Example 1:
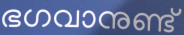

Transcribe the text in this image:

ഭഗവാനുണ്ട്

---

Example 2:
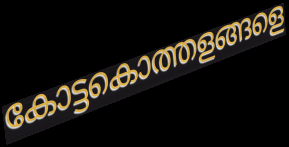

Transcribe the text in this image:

കോട്ടകൊത്തളങ്ങളെ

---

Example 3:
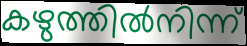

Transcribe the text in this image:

കഴുത്തിൽനിന്ന്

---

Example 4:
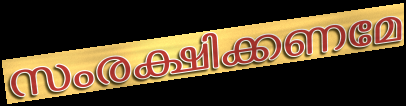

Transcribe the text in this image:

സംരക്ഷിക്കണമേ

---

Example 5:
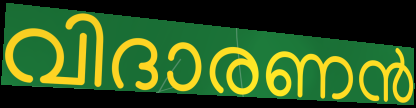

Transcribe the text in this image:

വിദാരണൻ